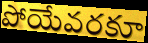
పోయేవరకూ